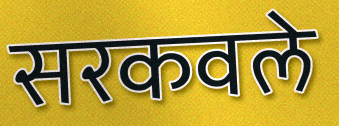
सरकवले